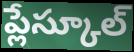
ప్లేస్కూల్